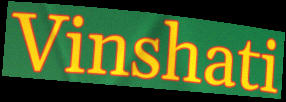
Vinshati